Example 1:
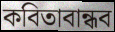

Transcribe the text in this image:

কবিতাবান্ধব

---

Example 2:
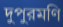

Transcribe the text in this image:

দুপুরমণি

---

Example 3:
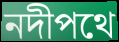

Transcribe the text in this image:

নদীপথে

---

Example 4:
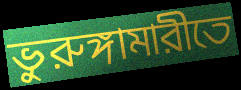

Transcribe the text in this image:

ভুরুঙ্গামারীতে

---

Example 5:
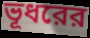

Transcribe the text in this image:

ভূধরের